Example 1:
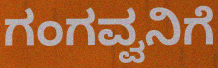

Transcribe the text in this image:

ಗಂಗವ್ವನಿಗೆ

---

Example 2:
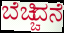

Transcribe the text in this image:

ಬೆಚ್ಚಿದನೆ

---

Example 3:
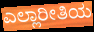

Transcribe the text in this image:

ಎಲ್ಲಾರೀತಿಯ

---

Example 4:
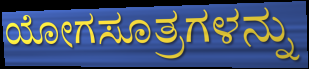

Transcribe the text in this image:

ಯೋಗಸೂತ್ರಗಳನ್ನು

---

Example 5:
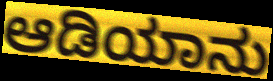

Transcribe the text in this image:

ಆಡಿಯಾನು